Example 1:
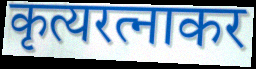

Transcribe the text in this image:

कृत्यरत्नाकर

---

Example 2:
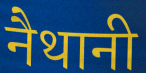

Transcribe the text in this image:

नैथानी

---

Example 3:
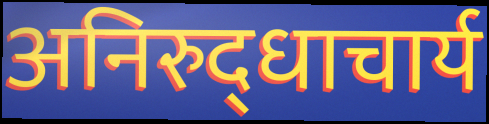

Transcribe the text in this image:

अनिरुद्धाचार्य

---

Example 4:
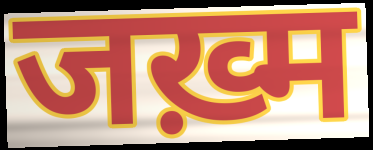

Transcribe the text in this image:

जख़्म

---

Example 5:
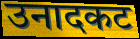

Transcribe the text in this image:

उनादकट